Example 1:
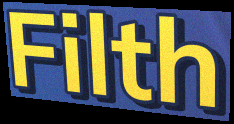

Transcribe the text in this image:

Filth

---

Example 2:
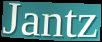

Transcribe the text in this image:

Jantz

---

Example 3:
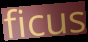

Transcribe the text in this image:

ficus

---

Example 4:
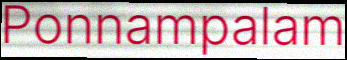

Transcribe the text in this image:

Ponnampalam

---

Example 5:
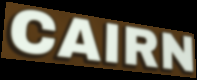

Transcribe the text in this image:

CAIRN